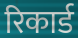
रिकार्ड